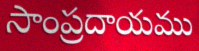
సాంప్రదాయము